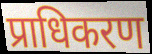
प्राधिकरण